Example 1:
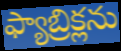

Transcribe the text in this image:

ఫ్యాబ్రిక్లను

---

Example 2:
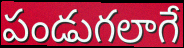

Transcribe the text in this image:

పండుగలాగే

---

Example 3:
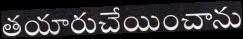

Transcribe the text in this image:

తయారుచేయించాను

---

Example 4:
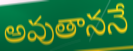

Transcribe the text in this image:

అవుతాననే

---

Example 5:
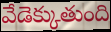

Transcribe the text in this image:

వేడెక్కుతుంది